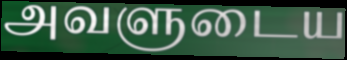
அவளுடைய